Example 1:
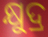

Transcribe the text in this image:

କ୍ଷୁଦ୍ର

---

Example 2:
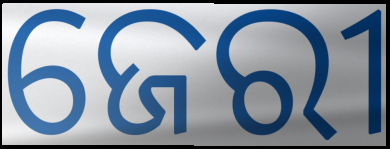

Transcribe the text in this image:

ଜେରୀ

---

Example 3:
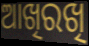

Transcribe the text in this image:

ଆଖିରଖି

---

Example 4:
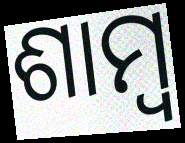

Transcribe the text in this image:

ଶାମ୍ୱ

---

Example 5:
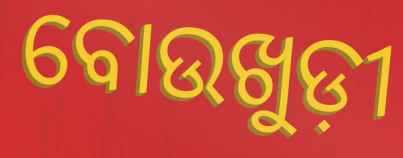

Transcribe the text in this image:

ବୋଉଖୁଡ଼ୀ